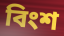
বিংশ